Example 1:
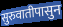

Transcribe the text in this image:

सुरुवातीपासुन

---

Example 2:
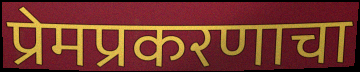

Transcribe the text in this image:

प्रेमप्रकरणाचा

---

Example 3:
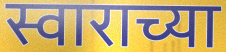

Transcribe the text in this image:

स्वाराच्या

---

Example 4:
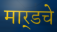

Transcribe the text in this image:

मार्डचे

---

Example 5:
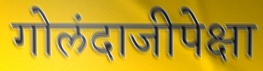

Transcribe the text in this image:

गोलंदाजीपेक्षा